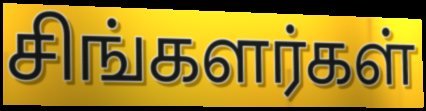
சிங்களர்கள்